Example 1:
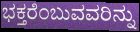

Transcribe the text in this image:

ಭಕ್ತರೆಂಬುವವರಿನ್ನು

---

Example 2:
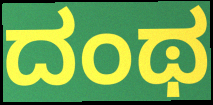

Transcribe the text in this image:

ದಂಥ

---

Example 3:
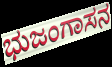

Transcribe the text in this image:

ಭುಜಂಗಾಸನ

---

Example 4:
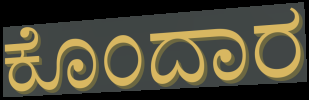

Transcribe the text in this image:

ಕೊಂದಾರ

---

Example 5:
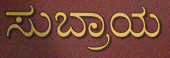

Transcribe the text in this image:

ಸುಬ್ರಾಯ